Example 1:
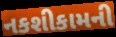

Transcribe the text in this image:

નકશીકામની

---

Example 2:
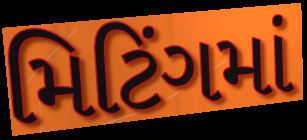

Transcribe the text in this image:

મિટિંગમાં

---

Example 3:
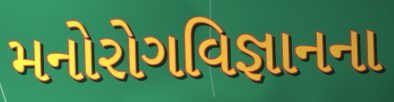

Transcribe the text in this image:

મનોરોગવિજ્ઞાનના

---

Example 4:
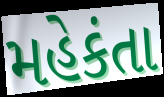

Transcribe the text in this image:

મહેકંતા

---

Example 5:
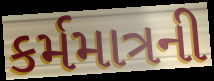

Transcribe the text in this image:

કર્મમાત્રની